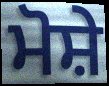
ਮੋਸ਼ੇ